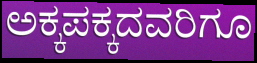
ಅಕ್ಕಪಕ್ಕದವರಿಗೂ